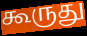
கூருது